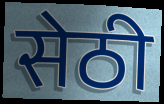
सेठी